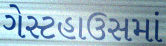
ગેસ્ટહાઉસમાં